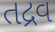
તદ્રવ